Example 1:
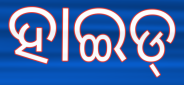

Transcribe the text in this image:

ହାଇଡ୍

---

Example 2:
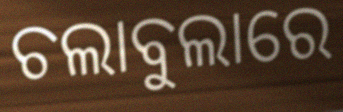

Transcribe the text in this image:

ଚଲାବୁଲାରେ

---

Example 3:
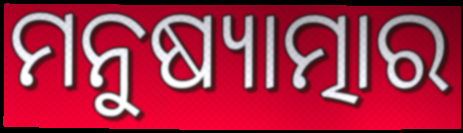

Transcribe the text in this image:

ମନୁଷ୍ୟାତ୍ମାର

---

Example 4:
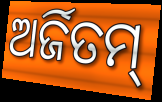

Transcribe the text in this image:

ଅର୍ଜିତମ୍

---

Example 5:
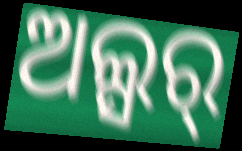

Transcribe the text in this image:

ଅଲ୍ସର୍